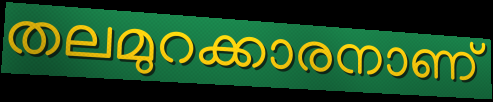
തലമുറക്കാരനാണ്